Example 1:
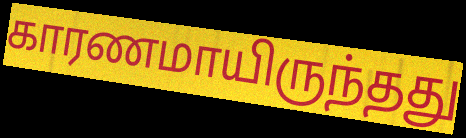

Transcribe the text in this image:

காரணமாயிருந்தது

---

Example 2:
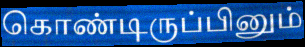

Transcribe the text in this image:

கொண்டிருப்பினும்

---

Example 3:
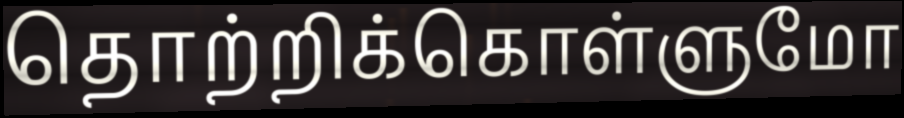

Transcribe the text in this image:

தொற்றிக்கொள்ளுமோ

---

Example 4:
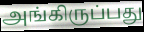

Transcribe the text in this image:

அங்கிருப்பது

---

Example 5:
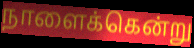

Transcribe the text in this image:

நாளைக்கென்று